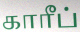
காரீப்